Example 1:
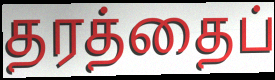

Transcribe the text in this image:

தரத்தைப்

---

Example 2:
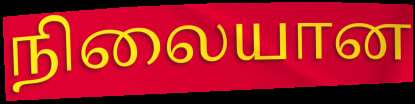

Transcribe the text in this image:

நிலையான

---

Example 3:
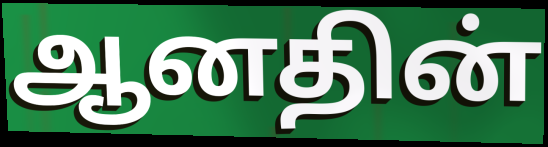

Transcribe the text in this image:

ஆனதின்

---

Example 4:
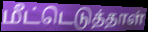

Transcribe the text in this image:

மீட்டெடுத்தாள்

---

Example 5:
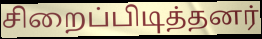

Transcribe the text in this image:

சிறைப்பிடித்தனர்